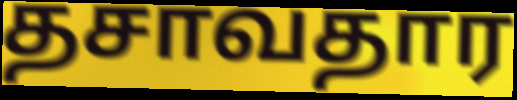
தசாவதார